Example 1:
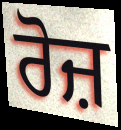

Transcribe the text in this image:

ਰੋਜ਼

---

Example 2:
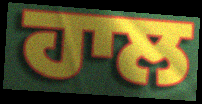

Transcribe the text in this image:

ਹਾਲ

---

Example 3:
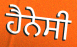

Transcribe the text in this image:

ਹੈਨੇਸੀ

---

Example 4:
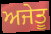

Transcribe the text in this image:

ਅਜੇਤੂ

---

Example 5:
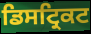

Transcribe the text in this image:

ਡਿਸਟ੍ਰਿਕਟ